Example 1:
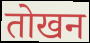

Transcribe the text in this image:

तोखन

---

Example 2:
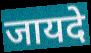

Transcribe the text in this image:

जायदे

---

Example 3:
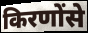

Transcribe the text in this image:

किरणोंसे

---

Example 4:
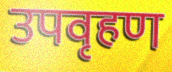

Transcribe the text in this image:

उपवृहण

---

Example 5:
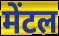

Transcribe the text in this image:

मेंटल